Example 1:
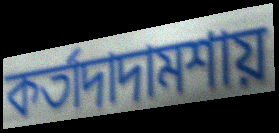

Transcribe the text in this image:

কর্তাদাদামশায়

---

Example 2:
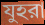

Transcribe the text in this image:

যুহরা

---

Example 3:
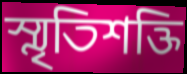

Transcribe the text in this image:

স্মৃতিশক্তি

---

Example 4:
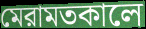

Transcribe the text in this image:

মেরামতকালে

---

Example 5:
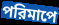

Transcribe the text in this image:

পরিমাপে